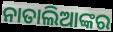
ନାତାଲିଆଙ୍କର